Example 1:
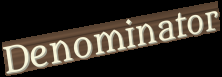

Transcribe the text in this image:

Denominator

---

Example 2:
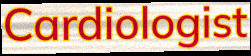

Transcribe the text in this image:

Cardiologist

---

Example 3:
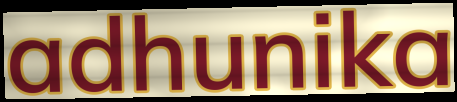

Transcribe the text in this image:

adhunika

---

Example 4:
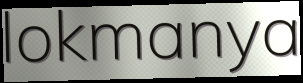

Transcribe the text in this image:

lokmanya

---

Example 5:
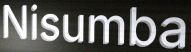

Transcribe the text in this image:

Nisumba